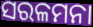
ସରଳମନା